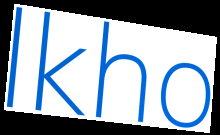
lkho